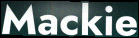
Mackie